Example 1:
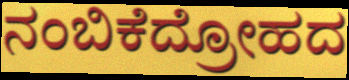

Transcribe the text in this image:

ನಂಬಿಕೆದ್ರೋಹದ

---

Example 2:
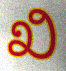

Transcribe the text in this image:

ಖಿ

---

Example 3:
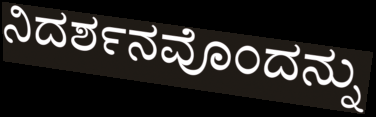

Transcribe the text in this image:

ನಿದರ್ಶನವೊಂದನ್ನು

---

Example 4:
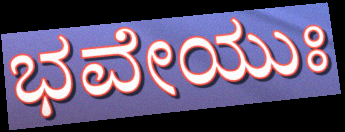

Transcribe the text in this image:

ಭವೇಯುಃ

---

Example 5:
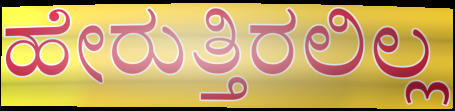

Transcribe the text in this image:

ಹೇರುತ್ತಿರಲಿಲ್ಲ